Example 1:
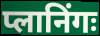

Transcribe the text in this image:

प्लानिंगः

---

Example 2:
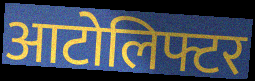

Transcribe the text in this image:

आटोलिफ्टर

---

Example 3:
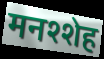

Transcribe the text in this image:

मनश्शेह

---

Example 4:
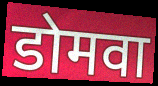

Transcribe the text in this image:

डोमवा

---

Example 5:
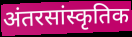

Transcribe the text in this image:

अंतरसांस्कृतिक